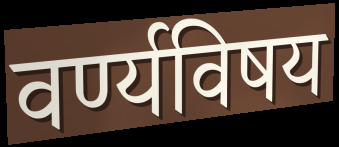
वर्ण्यविषय